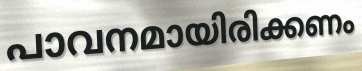
പാവനമായിരിക്കണം